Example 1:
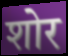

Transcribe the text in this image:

शोर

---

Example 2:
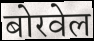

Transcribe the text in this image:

बोरवेल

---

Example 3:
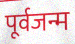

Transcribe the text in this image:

पूर्वजन्‍म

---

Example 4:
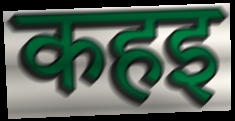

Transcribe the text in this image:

कहइ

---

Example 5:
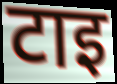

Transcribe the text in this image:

टाइ